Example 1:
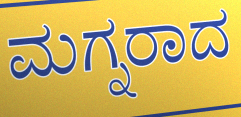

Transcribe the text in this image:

ಮಗ್ನರಾದ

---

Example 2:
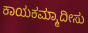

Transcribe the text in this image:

ಕಾಯಕಮ್ಮಾದೀಸು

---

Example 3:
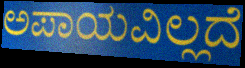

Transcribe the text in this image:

ಅಪಾಯವಿಲ್ಲದೆ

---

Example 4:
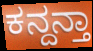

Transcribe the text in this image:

ಕನ್ದನ್ತಾ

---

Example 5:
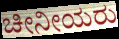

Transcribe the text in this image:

ಚೀನೀಯರು